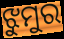
ଝୁମୁର